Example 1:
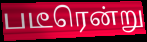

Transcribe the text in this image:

படீரென்று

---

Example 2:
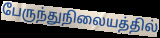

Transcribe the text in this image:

பேருந்துநிலையத்தில்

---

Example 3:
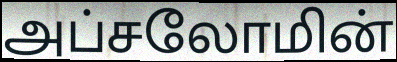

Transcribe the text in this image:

அப்சலோமின்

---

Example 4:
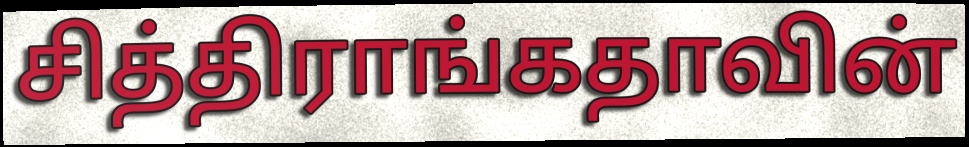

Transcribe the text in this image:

சித்திராங்கதாவின்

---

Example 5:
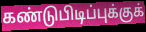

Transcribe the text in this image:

கண்டுபிடிப்புக்குக்